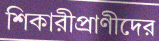
শিকারীপ্রাণীদের